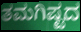
ತಮಗಿಷ್ಟದ